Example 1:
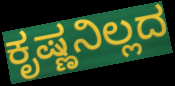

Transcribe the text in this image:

ಕೃಷ್ಣನಿಲ್ಲದ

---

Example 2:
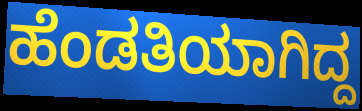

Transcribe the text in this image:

ಹೆಂಡತಿಯಾಗಿದ್ದ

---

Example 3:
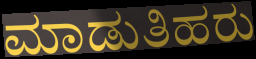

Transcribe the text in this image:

ಮಾಡುತಿಹರು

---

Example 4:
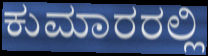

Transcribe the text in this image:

ಕುಮಾರರಲ್ಲಿ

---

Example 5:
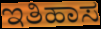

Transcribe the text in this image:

ಇತಿಹಾಸ